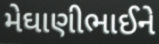
મેઘાણીભાઈને